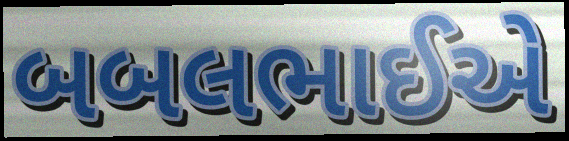
બબલભાઈએ